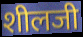
शीलजी